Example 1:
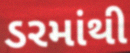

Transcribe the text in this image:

ડરમાંથી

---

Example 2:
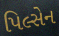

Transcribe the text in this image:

પિલ્સેન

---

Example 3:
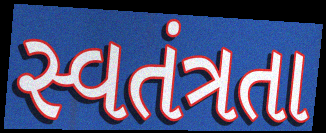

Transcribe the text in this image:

સ્વતંત્રતા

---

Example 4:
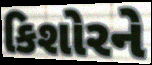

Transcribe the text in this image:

કિશોરને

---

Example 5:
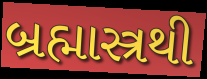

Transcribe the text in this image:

બ્રહ્માસ્ત્રથી